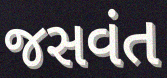
જસવંત